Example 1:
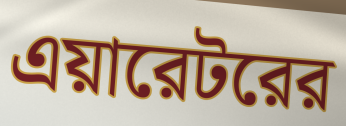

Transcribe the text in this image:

এয়ারেটরের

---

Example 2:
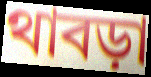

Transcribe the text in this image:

থাবড়া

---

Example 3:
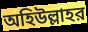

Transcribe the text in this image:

অহিউল্লাহর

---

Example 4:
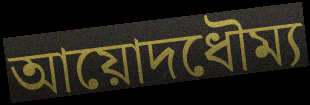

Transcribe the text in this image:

আয়োদধৌম্য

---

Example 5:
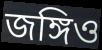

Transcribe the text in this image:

জঙ্গিও